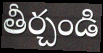
తీర్చండి